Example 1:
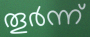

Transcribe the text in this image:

തൂർന്ന്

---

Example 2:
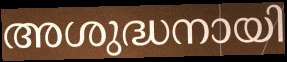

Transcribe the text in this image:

അശുദ്ധനായി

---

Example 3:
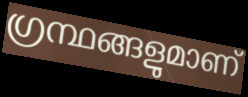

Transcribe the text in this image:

ഗ്രന്ഥങ്ങളുമാണ്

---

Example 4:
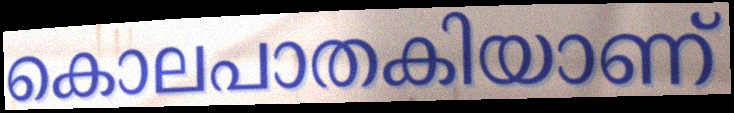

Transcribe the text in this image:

കൊലപാതകിയാണ്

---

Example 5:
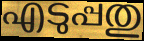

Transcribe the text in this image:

എടുപ്പതു